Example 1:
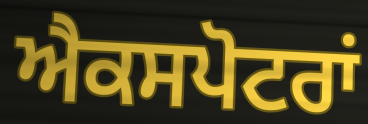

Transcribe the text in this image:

ਐਕਸਪੋਟਰਾਂ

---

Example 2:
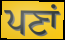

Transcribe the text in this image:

ਪਣਾਂ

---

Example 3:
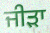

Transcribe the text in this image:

ਜੀੜਾ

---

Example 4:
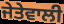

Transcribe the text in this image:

ਜੇਤੇਵਾਲੀ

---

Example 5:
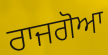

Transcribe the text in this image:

ਰਾਜਗੋਆ